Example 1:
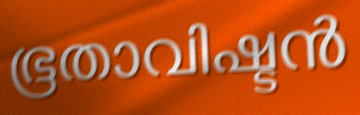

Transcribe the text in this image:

ഭൂതാവിഷ്ടൻ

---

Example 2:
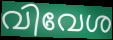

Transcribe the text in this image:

വിവേശ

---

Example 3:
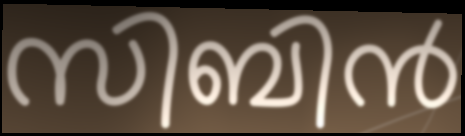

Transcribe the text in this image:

സിബിൻ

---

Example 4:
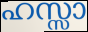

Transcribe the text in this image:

ഹസ്സാ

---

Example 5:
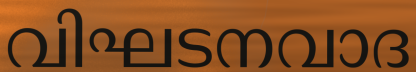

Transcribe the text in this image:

വിഘടനവാദ